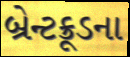
બ્રેન્ટક્રૂડના